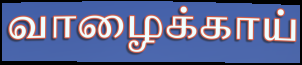
வாழைக்காய்